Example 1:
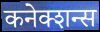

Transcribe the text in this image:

कनेक्शन्स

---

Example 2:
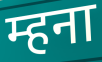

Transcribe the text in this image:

म्हना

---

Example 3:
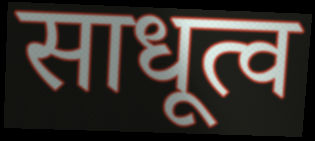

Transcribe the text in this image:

साधूत्व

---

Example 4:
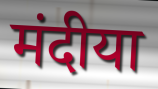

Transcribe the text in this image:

मंदीया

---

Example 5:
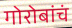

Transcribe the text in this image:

गोरोबांचं